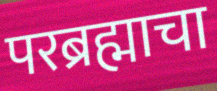
परब्रह्माचा